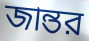
জান্তর